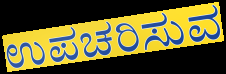
ಉಪಚರಿಸುವ